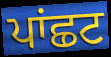
ਪਾਂਛਟ